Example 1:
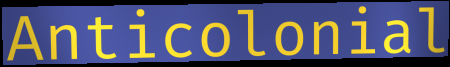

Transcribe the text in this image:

Anticolonial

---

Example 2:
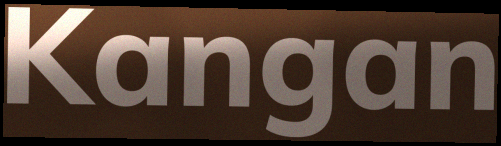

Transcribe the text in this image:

Kangan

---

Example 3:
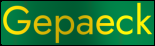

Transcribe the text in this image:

Gepaeck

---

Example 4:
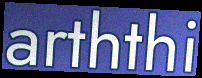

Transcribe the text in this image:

arththi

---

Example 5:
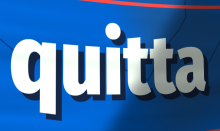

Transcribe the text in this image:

quitta